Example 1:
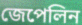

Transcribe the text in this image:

জেপেলিন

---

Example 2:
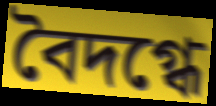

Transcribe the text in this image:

বৈদগ্ধে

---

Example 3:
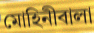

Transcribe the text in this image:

মোহিনীবালা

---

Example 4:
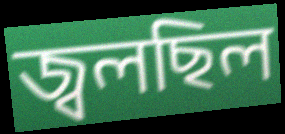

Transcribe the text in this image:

জ্বলছিল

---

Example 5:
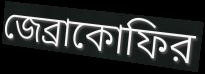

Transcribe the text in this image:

জেব্রাকোফির